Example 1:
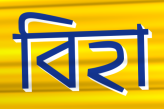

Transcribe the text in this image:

বিহা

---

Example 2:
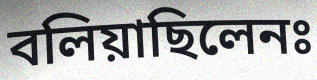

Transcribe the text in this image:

বলিয়াছিলেনঃ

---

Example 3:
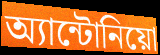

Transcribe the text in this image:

অ্যান্টোনিয়ো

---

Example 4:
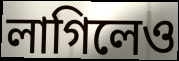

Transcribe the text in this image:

লাগিলেও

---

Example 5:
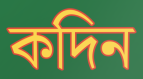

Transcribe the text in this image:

কদিন